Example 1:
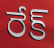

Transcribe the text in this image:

రేక్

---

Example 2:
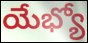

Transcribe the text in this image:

యేభ్యో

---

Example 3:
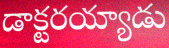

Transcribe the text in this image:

డాక్టరయ్యాడు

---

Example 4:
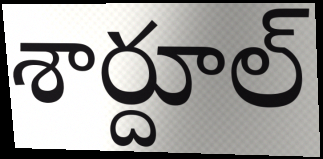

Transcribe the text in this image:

శార్దూల్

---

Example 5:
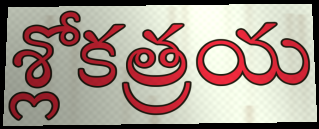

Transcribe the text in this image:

శ్లోకత్రయ